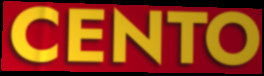
CENTO